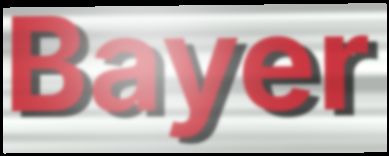
Bayer